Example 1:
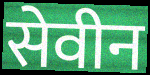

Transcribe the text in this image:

सेवीन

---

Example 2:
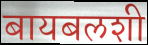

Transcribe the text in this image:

बायबलशी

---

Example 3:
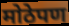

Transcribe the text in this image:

मोठेपण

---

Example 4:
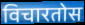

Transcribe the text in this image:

विचारतोस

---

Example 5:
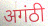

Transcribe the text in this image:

अगंठी